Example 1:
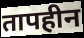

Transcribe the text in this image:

तापहीन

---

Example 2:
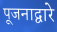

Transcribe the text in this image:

पूजनाद्वारे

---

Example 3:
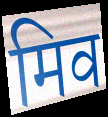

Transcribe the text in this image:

मिव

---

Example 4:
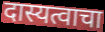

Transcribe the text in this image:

दास्यत्वाचा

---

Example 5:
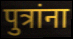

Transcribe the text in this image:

पुत्रांना